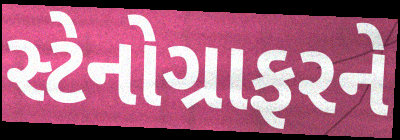
સ્ટેનોગ્રાફરને